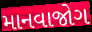
માનવાજોગ